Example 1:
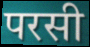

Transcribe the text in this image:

परसी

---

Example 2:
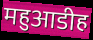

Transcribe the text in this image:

महुआडीह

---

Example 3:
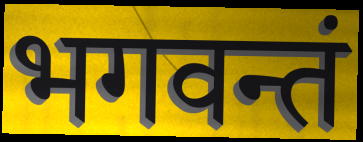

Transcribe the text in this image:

भगवन्तं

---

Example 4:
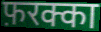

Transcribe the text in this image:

फ़रक्का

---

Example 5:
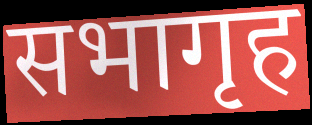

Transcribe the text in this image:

सभागृह